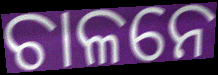
ଚାଳନେ